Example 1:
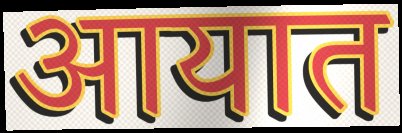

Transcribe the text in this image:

आयात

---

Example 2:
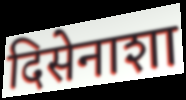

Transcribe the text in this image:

दिसेनाशा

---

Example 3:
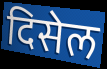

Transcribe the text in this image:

दिसेल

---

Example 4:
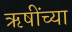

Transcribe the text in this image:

ऋषींच्या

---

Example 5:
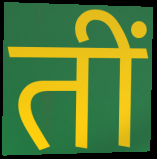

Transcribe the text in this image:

तीं